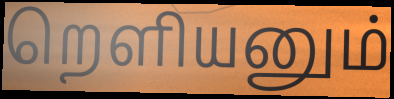
றெளியனும்